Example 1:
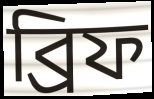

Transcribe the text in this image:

ব্রিফ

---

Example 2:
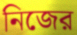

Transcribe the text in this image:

নিজের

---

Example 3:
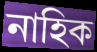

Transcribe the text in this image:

নাহিক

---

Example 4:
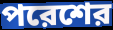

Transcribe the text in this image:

পরেশের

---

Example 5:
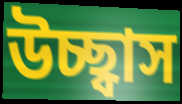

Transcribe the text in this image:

উচ্ছ্বাস